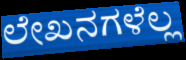
ಲೇಖನಗಳೆಲ್ಲ